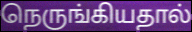
நெருங்கியதால்